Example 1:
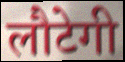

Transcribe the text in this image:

लौटेगी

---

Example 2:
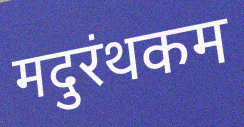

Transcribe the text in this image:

मदुरंथकम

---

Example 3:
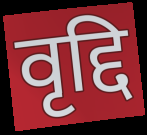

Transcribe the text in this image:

वृद्दि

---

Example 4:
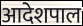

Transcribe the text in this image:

आदेशपाल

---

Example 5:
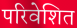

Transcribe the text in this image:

परिवेशित